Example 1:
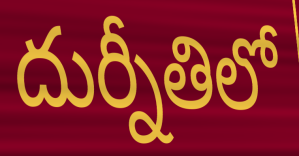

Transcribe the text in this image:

దుర్నీతిలో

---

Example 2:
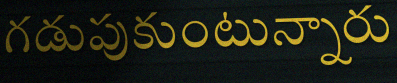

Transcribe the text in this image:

గడుపుకుంటున్నారు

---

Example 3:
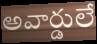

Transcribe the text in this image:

అవార్డులే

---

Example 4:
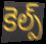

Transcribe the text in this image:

కెల్ప్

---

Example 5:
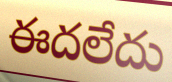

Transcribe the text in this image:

ఈదలేదు